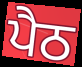
ਪੈਠ